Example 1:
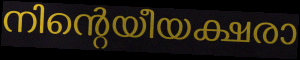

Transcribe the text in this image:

നിന്റെയീയക്ഷരാ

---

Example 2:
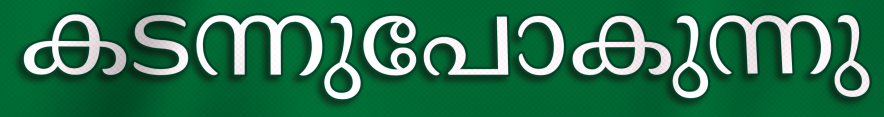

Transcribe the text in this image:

കടന്നുപോകുന്നു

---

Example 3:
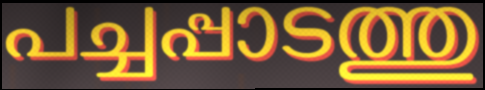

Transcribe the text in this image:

പച്ചപ്പാടത്തു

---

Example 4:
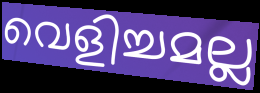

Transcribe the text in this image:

വെളിച്ചമല്ല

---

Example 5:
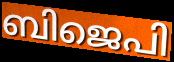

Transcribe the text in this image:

ബിജെപി